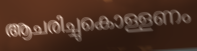
ആചരിച്ചുകൊള്ളണം